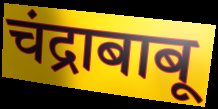
चंद्राबाबू